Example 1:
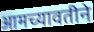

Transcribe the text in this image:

आमच्यावतीने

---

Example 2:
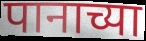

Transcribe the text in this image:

पानाच्या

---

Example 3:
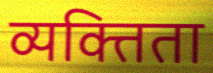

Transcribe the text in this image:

व्यक्तिता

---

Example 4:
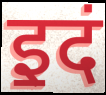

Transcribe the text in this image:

इ॒दं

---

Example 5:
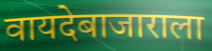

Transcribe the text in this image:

वायदेबाजाराला